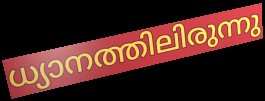
ധ്യാനത്തിലിരുന്നു